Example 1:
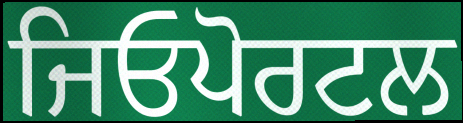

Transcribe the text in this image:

ਜਿਓਪੋਰਟਲ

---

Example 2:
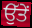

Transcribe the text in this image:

ਉੱਤੇਂ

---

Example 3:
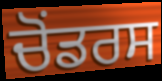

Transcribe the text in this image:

ਚੋਂਡਰਸ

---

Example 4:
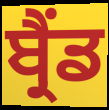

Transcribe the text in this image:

ਬ੍ਰੈਂਡ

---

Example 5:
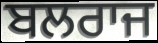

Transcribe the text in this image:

ਬਲਰਾਜ